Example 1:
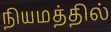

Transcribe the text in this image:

நியமத்தில்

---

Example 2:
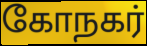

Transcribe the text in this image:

கோநகர்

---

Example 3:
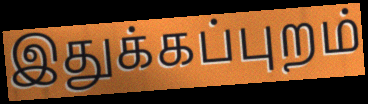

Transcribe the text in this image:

இதுக்கப்புறம்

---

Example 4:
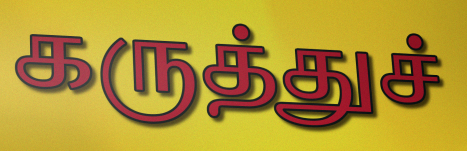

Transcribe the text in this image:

கருத்துச்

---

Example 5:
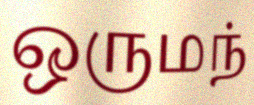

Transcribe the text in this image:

ஒருமந்